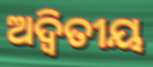
ଅଦ୍ୱିତୀୟ